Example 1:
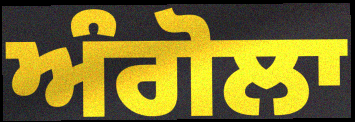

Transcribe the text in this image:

ਅੰਗੋਲਾ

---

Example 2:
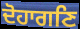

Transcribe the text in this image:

ਦੋਹਾਗਣਿ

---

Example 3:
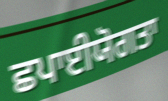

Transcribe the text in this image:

ਛਪਾਈਯੋਗਤਾ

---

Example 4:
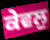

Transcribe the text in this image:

ਕੇਵਲੁ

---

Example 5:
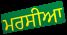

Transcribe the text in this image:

ਮਰਸੀਆ